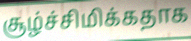
சூழ்ச்சிமிக்கதாக